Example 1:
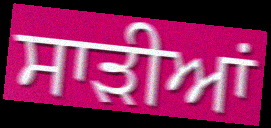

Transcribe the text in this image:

ਸਾਡ਼ੀਆਂ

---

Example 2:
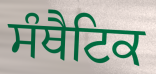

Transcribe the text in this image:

ਸੰਥੈਟਿਕ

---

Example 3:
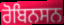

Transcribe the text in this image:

ਰੋਬਿਨਸਨ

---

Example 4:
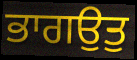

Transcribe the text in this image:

ਭਾਗਉਤੁ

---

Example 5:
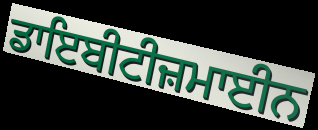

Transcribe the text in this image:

ਡਾਇਬੀਟੀਜ਼ਮਾਈਨ